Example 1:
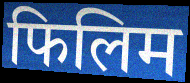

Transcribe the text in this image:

फिलिम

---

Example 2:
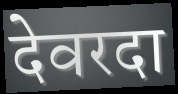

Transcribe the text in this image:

देवरदा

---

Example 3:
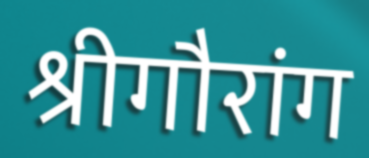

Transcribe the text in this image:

श्रीगौरांग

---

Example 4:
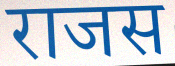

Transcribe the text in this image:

राजस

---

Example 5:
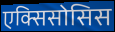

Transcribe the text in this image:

एक्सिसोसिस